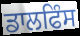
ਡਾਲਫਿੰਸ